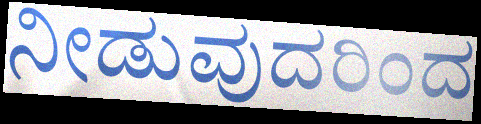
ನೀಡುವುದರಿಂದ